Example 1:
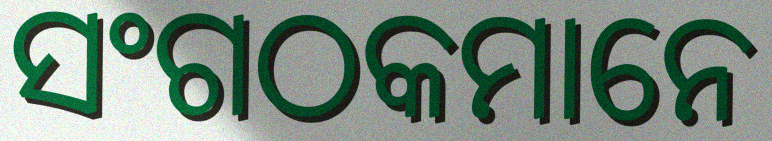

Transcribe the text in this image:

ସଂଗଠକମାନେ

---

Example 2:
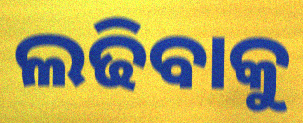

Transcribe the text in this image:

ଲଢିବାକୁ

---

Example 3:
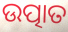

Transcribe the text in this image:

ଉତ୍ପାତ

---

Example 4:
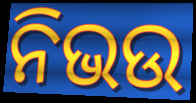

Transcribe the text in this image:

ନିଭଉ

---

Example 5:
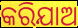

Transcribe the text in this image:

କରିଯାଅ